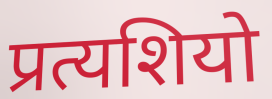
प्रत्यशियो